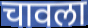
चावला